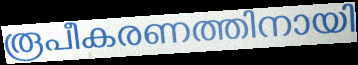
രൂപീകരണത്തിനായി